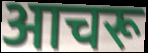
आचरू